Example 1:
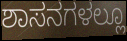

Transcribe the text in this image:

ಶಾಸನಗಳಲ್ಲೂ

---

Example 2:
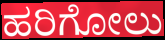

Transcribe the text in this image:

ಹರಿಗೋಲು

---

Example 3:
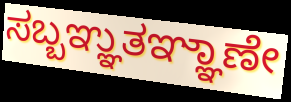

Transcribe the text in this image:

ಸಬ್ಬಞ್ಞುತಞ್ಞಾಣೇ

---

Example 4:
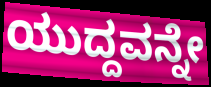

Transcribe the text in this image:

ಯುದ್ದವನ್ನೇ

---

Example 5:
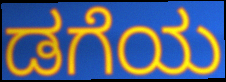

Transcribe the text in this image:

ಡಗೆಯ